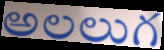
అలలుగ